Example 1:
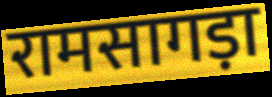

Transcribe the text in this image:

रामसागड़ा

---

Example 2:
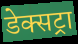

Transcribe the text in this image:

डेक्सट्रा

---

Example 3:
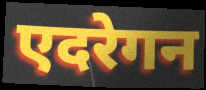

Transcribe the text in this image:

एदरेगन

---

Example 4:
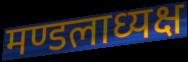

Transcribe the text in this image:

मण्डलाध्यक्ष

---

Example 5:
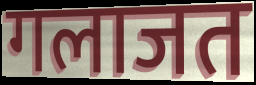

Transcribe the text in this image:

गलाजत